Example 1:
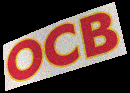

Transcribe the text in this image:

OCB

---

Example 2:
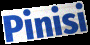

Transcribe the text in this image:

Pinisi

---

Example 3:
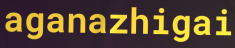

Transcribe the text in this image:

aganazhigai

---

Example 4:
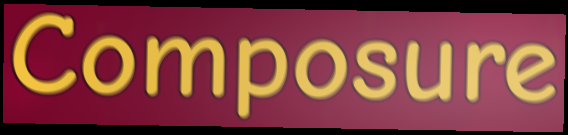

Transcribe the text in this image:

Composure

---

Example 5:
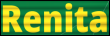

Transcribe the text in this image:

Renita